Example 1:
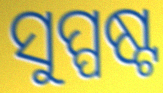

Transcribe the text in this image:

ସୁପ୍ପଷ୍ଟ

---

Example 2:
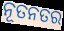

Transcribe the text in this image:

ନୂତନତର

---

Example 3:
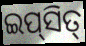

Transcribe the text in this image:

ଇପ୍‌ସିତ୍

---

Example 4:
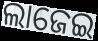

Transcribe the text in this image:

ଲାଜେଇ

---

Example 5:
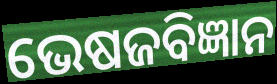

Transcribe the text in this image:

ଭେଷଜବିଜ୍ଞାନ